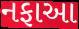
નફાઆ